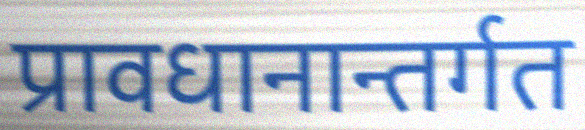
प्रावधानान्तर्गत